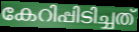
കേറിപ്പിടിച്ചത്